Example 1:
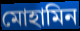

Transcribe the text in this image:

মোহামিন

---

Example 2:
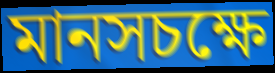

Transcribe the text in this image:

মানসচক্ষে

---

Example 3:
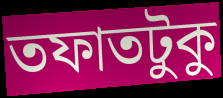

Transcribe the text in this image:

তফাতটুকু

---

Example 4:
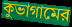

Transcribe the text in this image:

কুভাগামের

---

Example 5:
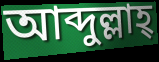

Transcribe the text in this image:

আব্দুল্লাহ্